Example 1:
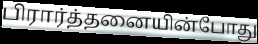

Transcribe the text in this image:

பிரார்த்தனையின்போது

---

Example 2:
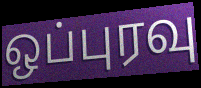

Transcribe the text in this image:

ஒப்புரவு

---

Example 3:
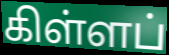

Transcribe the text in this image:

கிள்ளப்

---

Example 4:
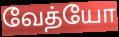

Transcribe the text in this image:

வேத்யோ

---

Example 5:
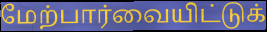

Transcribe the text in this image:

மேற்பார்வையிட்டுக்